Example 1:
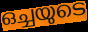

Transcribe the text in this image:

ഒച്ചയുടെ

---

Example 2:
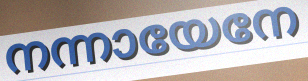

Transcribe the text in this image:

നന്നായേനേ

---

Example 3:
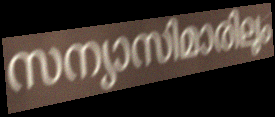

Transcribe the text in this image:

സന്യാസിമാരിലും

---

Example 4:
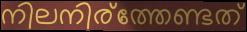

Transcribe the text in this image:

നിലനിര്ത്തേണ്ടത്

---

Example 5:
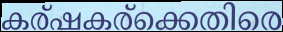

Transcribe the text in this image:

കര്ഷകര്ക്കെതിരെ